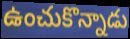
ఉంచుకొన్నాడు